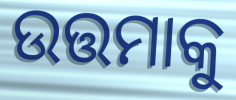
ଉତ୍ତମାକୁ